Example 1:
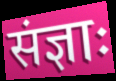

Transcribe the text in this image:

संज्ञाः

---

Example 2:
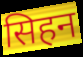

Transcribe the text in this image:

सिहन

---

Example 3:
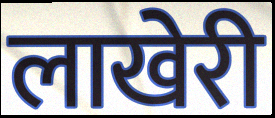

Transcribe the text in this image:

लाखेरी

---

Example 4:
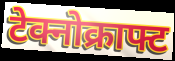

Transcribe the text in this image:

टेक्नोक्राफ्ट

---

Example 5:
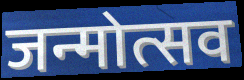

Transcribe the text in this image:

जन्मोत्सव